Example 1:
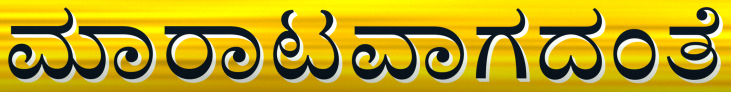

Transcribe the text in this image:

ಮಾರಾಟವಾಗದಂತೆ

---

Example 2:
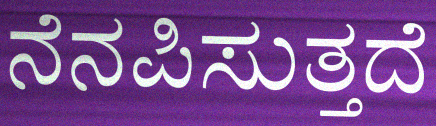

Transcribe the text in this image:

ನೆನಪಿಸುತ್ತದೆ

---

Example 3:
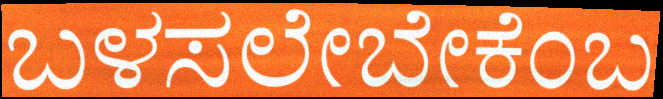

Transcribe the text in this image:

ಬಳಸಲೇಬೇಕೆಂಬ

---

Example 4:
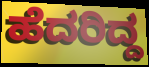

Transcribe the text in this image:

ಹೆದರಿದ್ದ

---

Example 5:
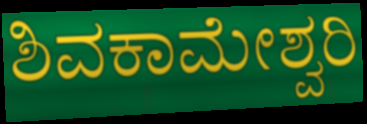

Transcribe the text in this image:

ಶಿವಕಾಮೇಶ್ವರಿ